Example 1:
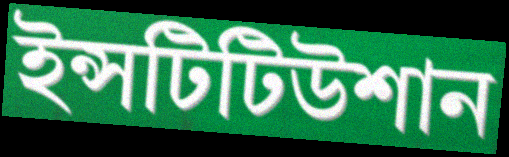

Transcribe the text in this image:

ইন্সটিটিউশান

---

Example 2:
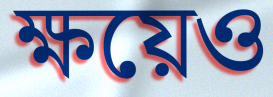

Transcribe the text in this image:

ক্ষয়েও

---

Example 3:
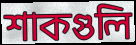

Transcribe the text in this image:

শাকগুলি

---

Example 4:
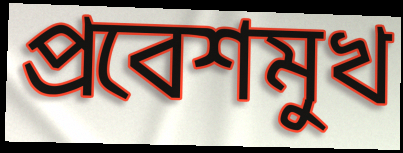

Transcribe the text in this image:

প্রবেশমুখ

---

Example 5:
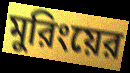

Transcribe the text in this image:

মুরিংয়ের